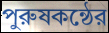
পুরুষকন্ঠের